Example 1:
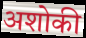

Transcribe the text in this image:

अशोकी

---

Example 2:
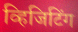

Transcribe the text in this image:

व्हिजिटिंग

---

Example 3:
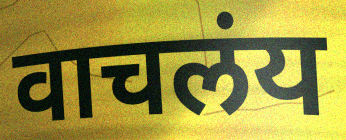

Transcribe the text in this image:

वाचलंय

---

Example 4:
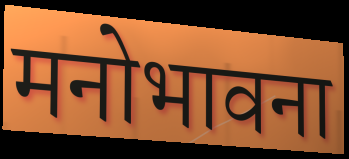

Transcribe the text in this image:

मनोभावना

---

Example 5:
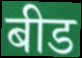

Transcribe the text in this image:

बीड